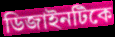
ডিজাইনটিকে